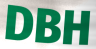
DBH